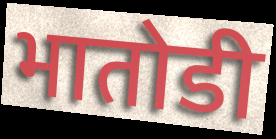
भातोडी